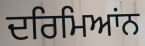
ਦਰਿਮਿਆਂਨ